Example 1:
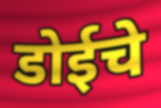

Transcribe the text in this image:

डोईचे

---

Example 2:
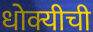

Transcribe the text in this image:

धोक्यीची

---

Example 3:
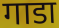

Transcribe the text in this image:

गाडा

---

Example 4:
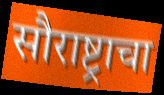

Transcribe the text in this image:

सौराष्ट्राचा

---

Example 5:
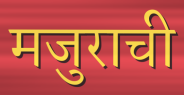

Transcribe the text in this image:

मजुराची